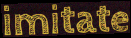
imitate